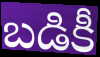
బడికీ